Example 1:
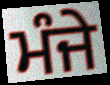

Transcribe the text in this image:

ਮੰਜੇ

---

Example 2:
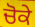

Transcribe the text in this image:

ਚੋਕੇ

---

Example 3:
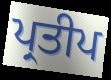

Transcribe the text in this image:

ਪ੍ਰਤੀਪ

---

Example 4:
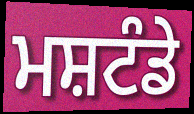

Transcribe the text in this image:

ਮਸ਼ਟੰਡੇ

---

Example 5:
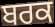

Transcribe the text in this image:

ਬਰਕ